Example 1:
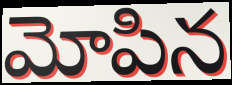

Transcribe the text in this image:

మోపిన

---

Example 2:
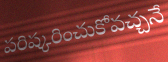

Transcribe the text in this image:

పరిష్కరించుకోవచ్చనే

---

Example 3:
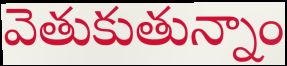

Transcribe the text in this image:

వెతుకుతున్నాం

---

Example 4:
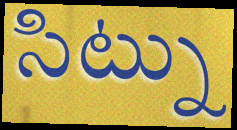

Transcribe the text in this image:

సిట్ను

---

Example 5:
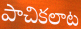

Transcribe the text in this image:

పాచికలాట